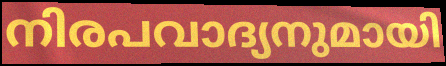
നിരപവാദ്യനുമായി